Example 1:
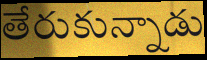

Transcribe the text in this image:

తేరుకున్నాడు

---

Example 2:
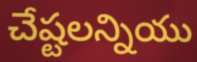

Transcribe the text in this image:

చేష్టలన్నియు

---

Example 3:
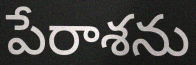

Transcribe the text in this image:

పేరాశను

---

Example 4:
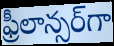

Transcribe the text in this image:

ఫ్రీలాన్సర్‌గా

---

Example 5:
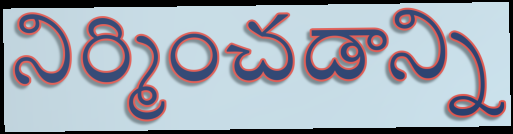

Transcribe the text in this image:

నిర్మించడాన్ని